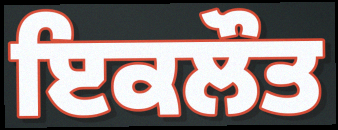
ਇਕਲੌਤ